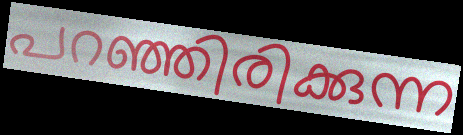
പറഞ്ഞിരിക്കുന്ന